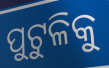
ପୁଟୁଳିକୁ